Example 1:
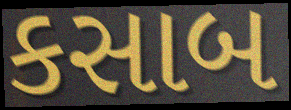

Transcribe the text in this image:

કસાબ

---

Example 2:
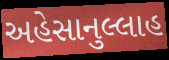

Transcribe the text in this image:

અહેસાનુલ્લાહ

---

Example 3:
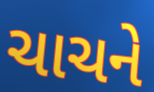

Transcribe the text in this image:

ચાચને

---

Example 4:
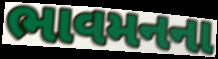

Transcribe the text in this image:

ભાવમનના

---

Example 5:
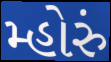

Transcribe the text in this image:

મ્હોરું